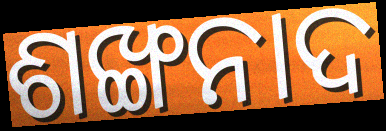
ଶଙ୍ଖନାଦ